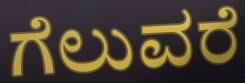
ಗೆಲುವರೆ